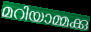
മറിയാമ്മക്കു